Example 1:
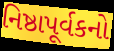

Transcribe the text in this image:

નિષ્ઠાપૂર્વકનો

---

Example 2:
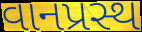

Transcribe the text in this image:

વાનપ્રસ્થ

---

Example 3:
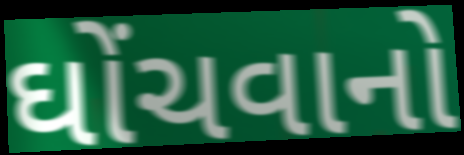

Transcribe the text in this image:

ઘોંચવાનો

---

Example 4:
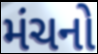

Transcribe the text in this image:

મંચનો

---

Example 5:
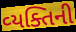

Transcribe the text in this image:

વ્‍યક્તિની